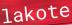
lakote